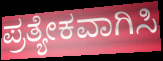
ಪ್ರತ್ಯೇಕವಾಗಿಸಿ